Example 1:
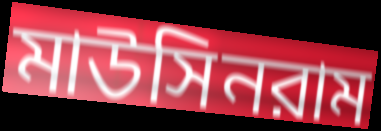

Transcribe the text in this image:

মাউসিনরাম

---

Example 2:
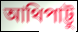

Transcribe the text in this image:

আথিপাট্টু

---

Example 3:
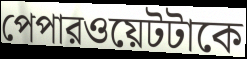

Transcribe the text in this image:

পেপারওয়েটটাকে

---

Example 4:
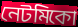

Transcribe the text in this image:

নেটমিকো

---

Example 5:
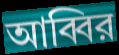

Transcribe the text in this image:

আব্বির